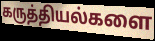
கருத்தியல்களை